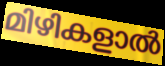
മിഴികളാൽ